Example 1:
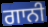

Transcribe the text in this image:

ਗਾਨੀ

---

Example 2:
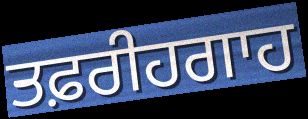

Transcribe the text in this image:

ਤਫ਼ਰੀਹਗਾਹ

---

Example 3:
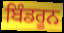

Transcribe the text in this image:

ਬਿੰਡਰੂਨ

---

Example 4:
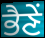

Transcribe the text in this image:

ਭੈਣੇਂ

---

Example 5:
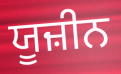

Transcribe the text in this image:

ਯੂਜ਼ੀਨ